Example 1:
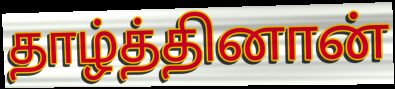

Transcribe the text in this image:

தாழ்த்தினான்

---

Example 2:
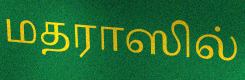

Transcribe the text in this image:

மதராஸில்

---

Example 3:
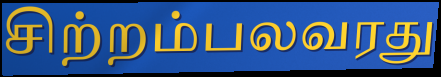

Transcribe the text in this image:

சிற்றம்பலவரது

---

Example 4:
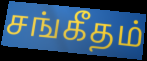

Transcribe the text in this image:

சங்கீதம்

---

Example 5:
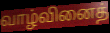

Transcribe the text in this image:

வாழ்வினைத்